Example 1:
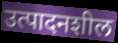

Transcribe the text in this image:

उत्पादनशील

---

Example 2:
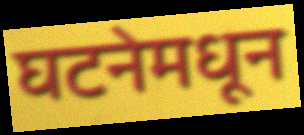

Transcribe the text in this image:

घटनेमधून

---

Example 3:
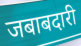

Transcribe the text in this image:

जबाबदारी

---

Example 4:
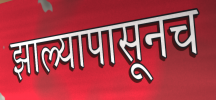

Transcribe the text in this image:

झाल्यापासूनच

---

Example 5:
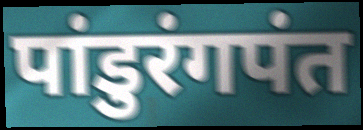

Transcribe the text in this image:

पांडुरंगपंत